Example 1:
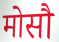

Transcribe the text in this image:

मोसौ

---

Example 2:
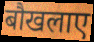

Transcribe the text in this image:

बौखलाए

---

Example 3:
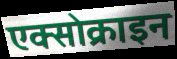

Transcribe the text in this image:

एक्सोक्राइन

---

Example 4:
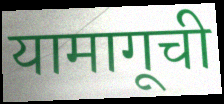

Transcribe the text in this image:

यामागूची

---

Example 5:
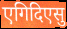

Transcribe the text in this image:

एगिदिएसु